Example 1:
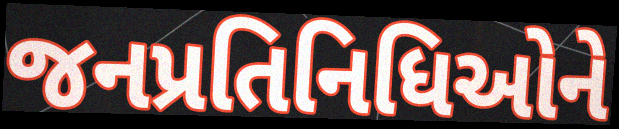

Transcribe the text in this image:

જનપ્રતિનિધિઓને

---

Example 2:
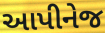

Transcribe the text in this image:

આપીનેજ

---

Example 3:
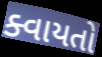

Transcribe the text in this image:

ક્વાયતો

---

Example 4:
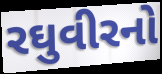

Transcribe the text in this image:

રઘુવીરનો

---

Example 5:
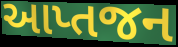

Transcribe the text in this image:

આપ્તજન